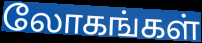
லோகங்கள்